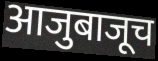
आजुबाजूच